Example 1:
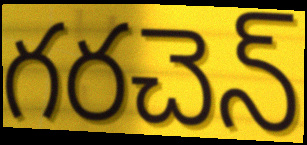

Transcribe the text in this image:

గరచెన్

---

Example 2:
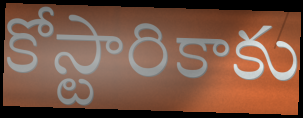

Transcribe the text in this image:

కోస్టారికాకు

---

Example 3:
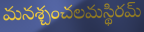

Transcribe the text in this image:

మనశ్చంచలమస్థిరమ్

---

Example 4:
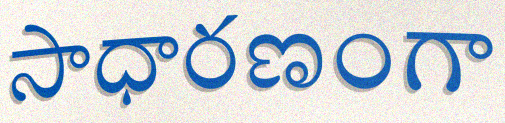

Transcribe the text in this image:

సాధారణంగా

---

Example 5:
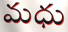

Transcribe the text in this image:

మధు